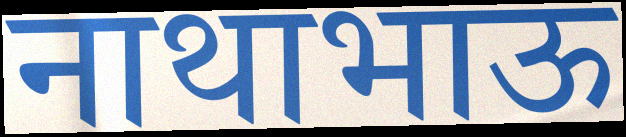
नाथाभाऊ